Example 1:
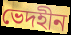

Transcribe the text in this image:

ভেদহীন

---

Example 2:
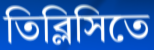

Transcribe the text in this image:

তিব্লিসিতে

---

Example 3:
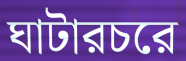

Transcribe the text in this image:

ঘাটারচরে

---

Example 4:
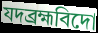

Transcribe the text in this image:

যদব্রহ্মবিদো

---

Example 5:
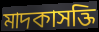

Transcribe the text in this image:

মাদকাসক্তি